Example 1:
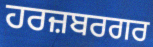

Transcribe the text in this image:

ਹਰਜ਼ਬਰਗਰ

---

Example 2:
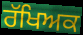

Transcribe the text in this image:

ਰੱਖਿਅਕ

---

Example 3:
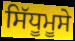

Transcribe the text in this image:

ਸਿੱਧੂਮੂਸੇ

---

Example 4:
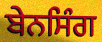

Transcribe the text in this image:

ਬੇਨਸਿੰਗ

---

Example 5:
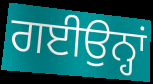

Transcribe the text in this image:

ਗਈਉਨ੍ਹਾਂ